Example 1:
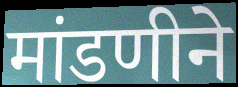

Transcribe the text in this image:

मांडणीने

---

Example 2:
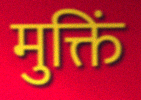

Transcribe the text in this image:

मुक्तिं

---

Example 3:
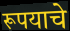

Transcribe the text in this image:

रूपयाचे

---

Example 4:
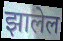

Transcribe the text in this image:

झालेल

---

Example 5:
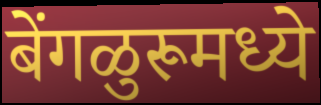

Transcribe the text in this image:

बेंगळुरूमध्ये